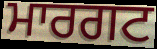
ਮਾਰਗਟ